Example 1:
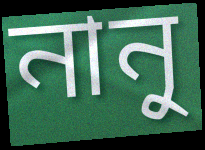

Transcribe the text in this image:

নানু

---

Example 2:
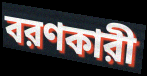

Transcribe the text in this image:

বরণকারী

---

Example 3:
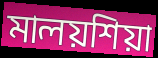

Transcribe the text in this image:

মালয়শিয়া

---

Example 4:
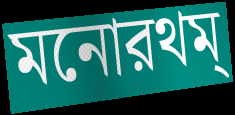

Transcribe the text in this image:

মনোরথম্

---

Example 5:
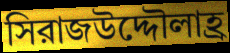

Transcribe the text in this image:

সিরাজউদ্দৌলাহ্র